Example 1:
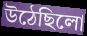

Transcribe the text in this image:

উঠেছিলো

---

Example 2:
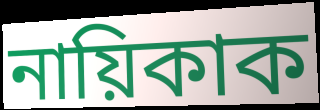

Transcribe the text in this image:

নায়িকাক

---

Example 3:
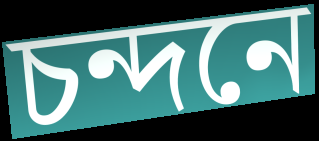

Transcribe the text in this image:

চন্দনে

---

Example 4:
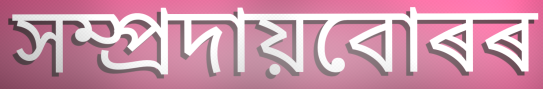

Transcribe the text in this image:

সম্প্ৰদায়বোৰৰ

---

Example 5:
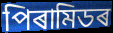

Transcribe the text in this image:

পিৰামিডৰ